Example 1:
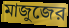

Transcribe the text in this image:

মাজুজের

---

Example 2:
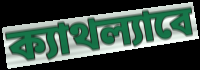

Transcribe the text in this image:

ক্যাথল্যাবে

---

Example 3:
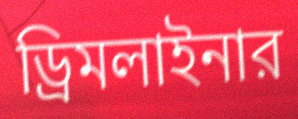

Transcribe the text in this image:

ড্রিমলাইনার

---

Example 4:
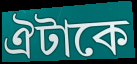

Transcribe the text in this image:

ঐটাকে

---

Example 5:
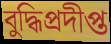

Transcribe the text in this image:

বুদ্ধিপ্রদীপ্ত